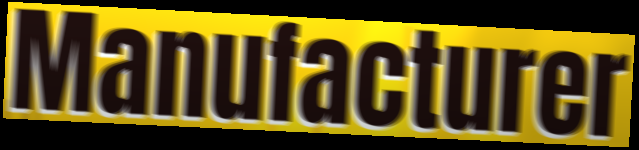
Manufacturer